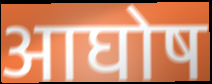
आघोष